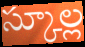
స్కూల్ల